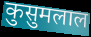
कुसुमलाल